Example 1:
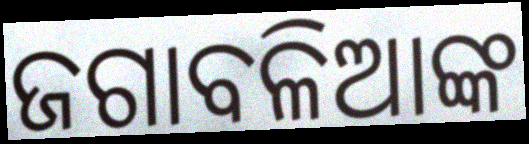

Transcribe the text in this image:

ଜଗାବଳିଆଙ୍କ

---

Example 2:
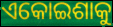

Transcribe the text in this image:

ଏକୋଇଶାକୁ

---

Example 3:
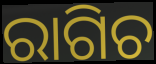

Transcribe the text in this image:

ରାଗିଚ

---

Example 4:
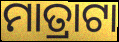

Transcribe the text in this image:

ମାତ୍ରାଟା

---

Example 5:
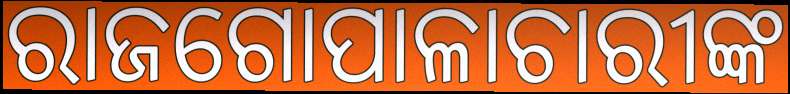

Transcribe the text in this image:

ରାଜଗୋପାଳାଚାରୀଙ୍କ